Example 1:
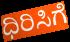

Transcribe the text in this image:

ಧಿರಿಸಿಗೆ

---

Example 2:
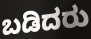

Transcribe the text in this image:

ಬಡಿದರು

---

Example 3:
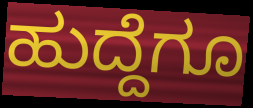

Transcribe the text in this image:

ಹುದ್ದೆಗೂ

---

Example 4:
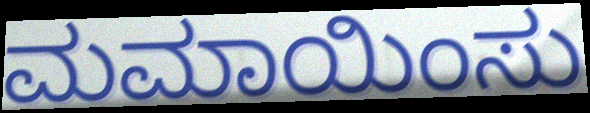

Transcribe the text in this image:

ಮಮಾಯಿಂಸು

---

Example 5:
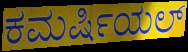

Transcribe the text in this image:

ಕಮರ್ಷಿಯಲ್